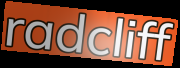
radcliff